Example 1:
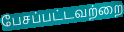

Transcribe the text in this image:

பேசப்பட்டவற்றை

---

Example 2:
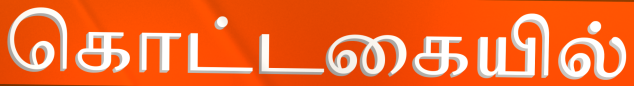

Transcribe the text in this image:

கொட்டகையில்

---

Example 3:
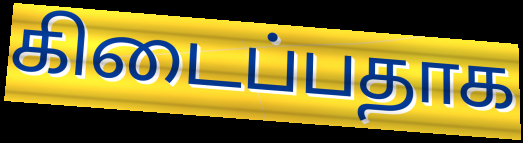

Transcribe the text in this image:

கிடைப்பதாக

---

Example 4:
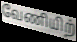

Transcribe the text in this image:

வேணியிற்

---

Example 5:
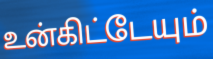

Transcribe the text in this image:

உன்கிட்டேயும்